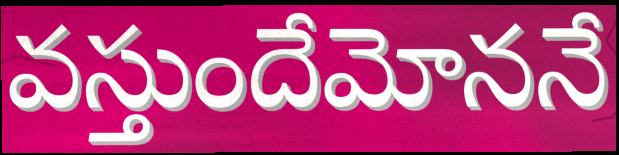
వస్తుందేమోననే